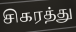
சிகரத்து